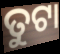
ତୁଟା